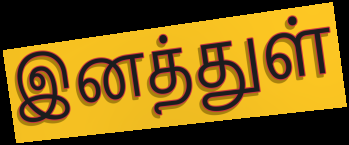
இனத்துள்